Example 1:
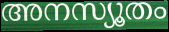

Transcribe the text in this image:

അനസ്യൂതം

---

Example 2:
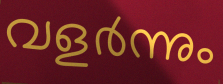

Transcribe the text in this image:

വളർന്നും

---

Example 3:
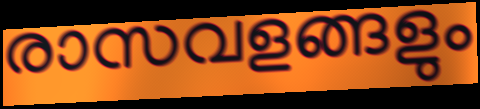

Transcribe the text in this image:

രാസവളങ്ങളും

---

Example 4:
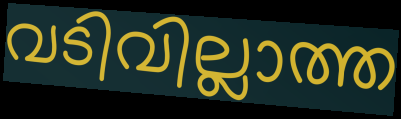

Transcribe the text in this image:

വടിവില്ലാത്ത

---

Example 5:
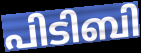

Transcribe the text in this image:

പിടിബി